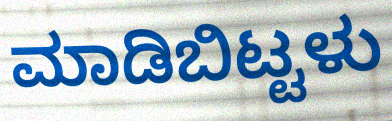
ಮಾಡಿಬಿಟ್ಟಳು